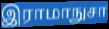
இராமாநுசா